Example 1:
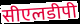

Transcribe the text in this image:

सीएलडीपी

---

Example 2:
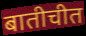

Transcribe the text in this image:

बातीचीत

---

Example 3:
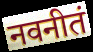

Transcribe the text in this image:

नवनीतं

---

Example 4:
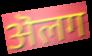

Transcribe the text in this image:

ऄलग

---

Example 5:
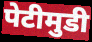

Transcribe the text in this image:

पेटीमुडी